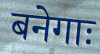
बनेगाः